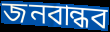
জনবান্ধব